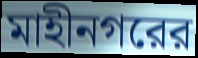
মাহীনগরের